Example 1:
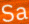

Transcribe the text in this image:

Sa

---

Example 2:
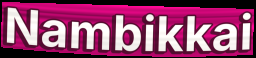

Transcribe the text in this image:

Nambikkai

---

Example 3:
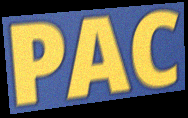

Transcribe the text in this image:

PAC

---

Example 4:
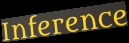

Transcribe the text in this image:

Inference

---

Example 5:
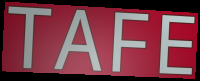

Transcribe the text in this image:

TAFE